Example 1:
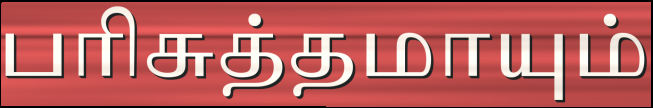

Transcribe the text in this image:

பரிசுத்தமாயும்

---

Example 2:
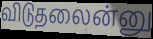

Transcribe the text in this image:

விடுதலைன்னு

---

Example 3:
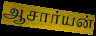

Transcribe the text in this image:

ஆசார்யன்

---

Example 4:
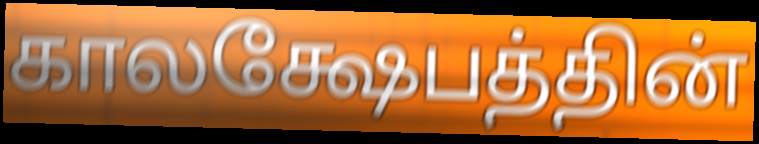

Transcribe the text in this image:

காலக்ஷேபத்தின்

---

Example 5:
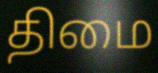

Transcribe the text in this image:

திமை